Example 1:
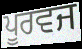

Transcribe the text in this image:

ਪੂਰਵਜ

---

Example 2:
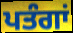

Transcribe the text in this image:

ਪਤੰਗਾਂ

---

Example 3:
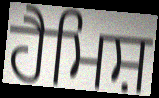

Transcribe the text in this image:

ਹੈਮਿਸ਼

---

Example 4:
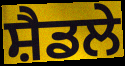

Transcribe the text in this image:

ਸ਼ੈਡਲੇ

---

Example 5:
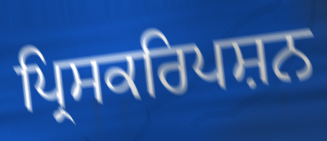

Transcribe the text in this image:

ਪ੍ਰਿਸਕਰਿਪਸ਼ਨ